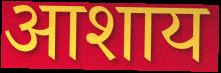
आशाय